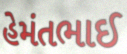
હેમંતભાઈ